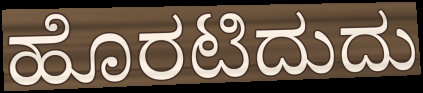
ಹೊರಟಿದುದು